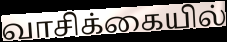
வாசிக்கையில்